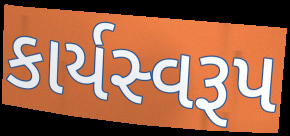
કાર્યસ્વરૂપ